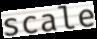
scale